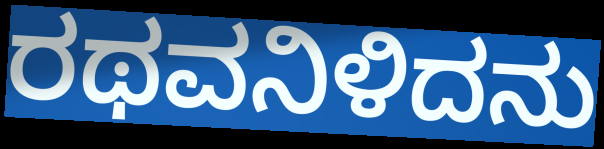
ರಥವನಿಳಿದನು